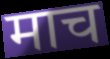
माच